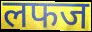
लफज